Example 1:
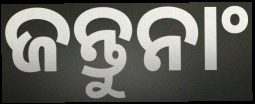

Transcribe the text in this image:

ଜନ୍ତୁନାଂ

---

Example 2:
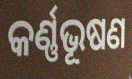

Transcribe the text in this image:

କର୍ଣ୍ଣଭୂଷଣ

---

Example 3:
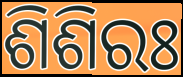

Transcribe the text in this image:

ଶିଶିରଃ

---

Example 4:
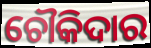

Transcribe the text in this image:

ଚୌକିଦାର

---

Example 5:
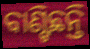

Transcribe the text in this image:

ବାଣ୍ଟିଛନ୍ତି